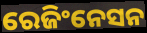
ରେଜିଂନେସନ